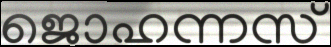
ജൊഹന്നസ്